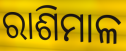
ରାଶିମାଳ